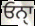
ਓਨਾੑ